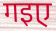
गइए